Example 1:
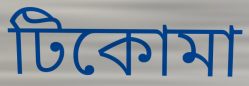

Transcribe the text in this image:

টিকোমা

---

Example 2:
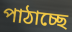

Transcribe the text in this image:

পাঠাচ্ছে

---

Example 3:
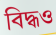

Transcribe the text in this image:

বিদ্ধও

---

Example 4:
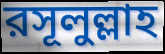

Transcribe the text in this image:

রসূলুল্লাহ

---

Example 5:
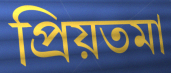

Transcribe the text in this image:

প্রিয়তমা